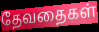
தேவதைகள்